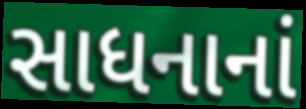
સાધનાનાં